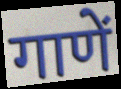
गाणें